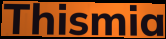
Thismia